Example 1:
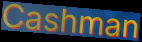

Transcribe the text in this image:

Cashman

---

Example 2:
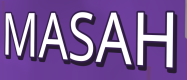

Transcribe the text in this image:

MASAH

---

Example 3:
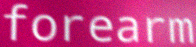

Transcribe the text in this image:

forearm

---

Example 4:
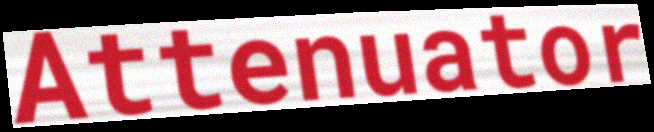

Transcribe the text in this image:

Attenuator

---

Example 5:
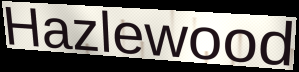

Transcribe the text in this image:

Hazlewood